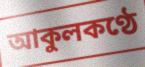
আকুলকণ্ঠে